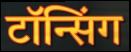
टॉन्सिंग